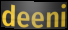
deeni